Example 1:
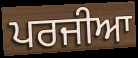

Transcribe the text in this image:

ਪਰਜੀਆ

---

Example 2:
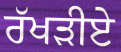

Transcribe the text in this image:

ਰੱਖੜੀਏ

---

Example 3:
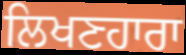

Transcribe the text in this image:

ਲਿਖਣਹਾਰਾ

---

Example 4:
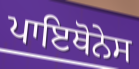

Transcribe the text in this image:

ਪਾਇਥੋਨੇਸ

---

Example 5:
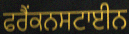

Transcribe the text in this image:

ਫਰੈਂਕਨਸਟਾਈਨ